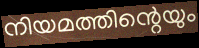
നിയമത്തിന്റെയും